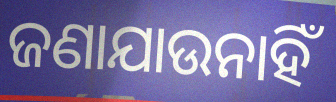
ଜଣାଯାଉନାହିଁ